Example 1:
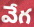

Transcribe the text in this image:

వేగ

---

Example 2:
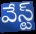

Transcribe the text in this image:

వేస్ట్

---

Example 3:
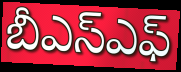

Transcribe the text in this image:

బీఎస్ఎఫ్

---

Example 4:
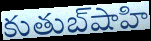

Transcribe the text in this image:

కుతుబ్‌షాహి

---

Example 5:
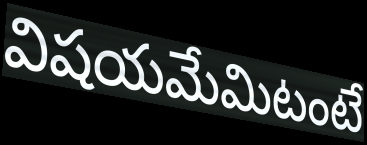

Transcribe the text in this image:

విషయమేమిటంటే